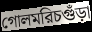
গোলমরিচগুঁড়া